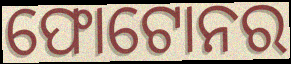
ଫୋଟୋନର